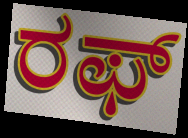
ರಫ್